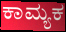
ಕಾಮ್ಯಕ